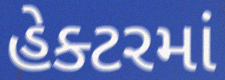
હેક્ટરમાં